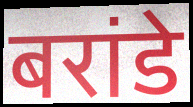
बरांडे